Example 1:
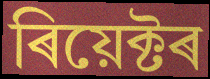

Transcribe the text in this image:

ৰিয়েক্টৰ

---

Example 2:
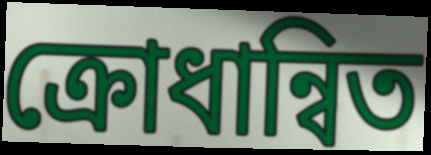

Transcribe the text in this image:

ক্ৰোধান্বিত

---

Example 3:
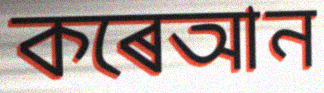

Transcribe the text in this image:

কৰেআন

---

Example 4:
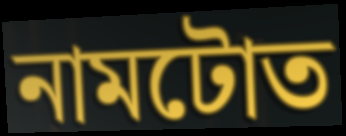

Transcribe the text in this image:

নামটোত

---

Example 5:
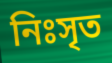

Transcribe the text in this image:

নিঃসৃত